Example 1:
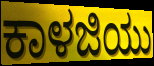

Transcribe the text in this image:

ಕಾಳಜಿಯು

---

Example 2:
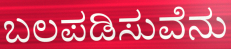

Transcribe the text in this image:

ಬಲಪಡಿಸುವೆನು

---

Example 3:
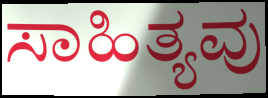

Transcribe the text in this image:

ಸಾಹಿತ್ಯವು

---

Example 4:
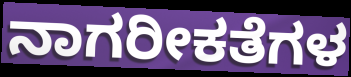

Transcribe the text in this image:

ನಾಗರೀಕತೆಗಳ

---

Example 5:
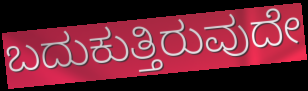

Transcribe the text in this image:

ಬದುಕುತ್ತಿರುವುದೇ